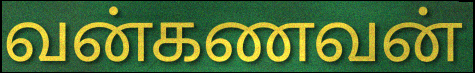
வன்கணவன்